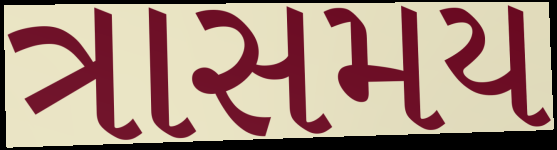
ત્રાસમય